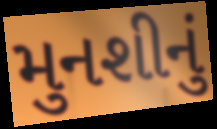
મુનશીનું